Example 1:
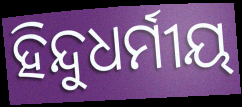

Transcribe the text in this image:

ହିନ୍ଦୁଧର୍ମୀୟ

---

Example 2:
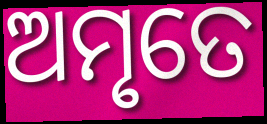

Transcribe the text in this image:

ଅମୃତେ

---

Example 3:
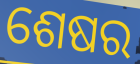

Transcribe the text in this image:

ଶେଷର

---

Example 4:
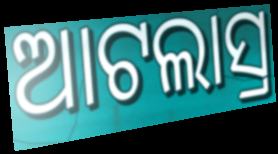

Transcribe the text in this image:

ଆଟଲାସ୍ର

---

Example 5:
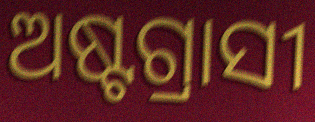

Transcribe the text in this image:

ଅଷ୍ଟଗ୍ରାସୀ